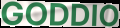
GODDIO